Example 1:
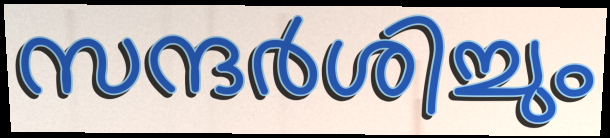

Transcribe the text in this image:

സന്ദർശിച്ചും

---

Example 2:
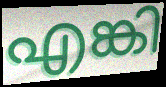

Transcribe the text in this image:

എങ്കി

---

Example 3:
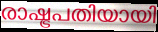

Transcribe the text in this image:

രാഷ്ട്രപതിയായി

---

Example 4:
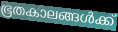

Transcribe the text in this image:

ഭൂതകാലങ്ങൾക്ക്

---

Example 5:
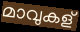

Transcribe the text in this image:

മാവുകള്